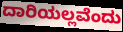
ದಾರಿಯಲ್ಲವೆಂದು